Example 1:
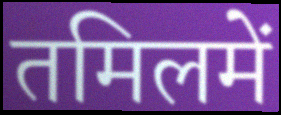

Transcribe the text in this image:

तमिलमें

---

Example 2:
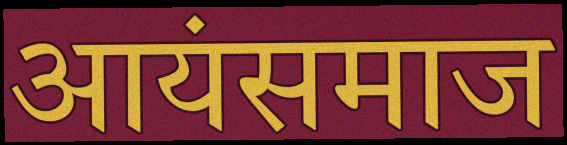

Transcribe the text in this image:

आयंसमाज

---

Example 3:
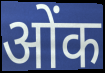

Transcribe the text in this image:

ओंक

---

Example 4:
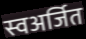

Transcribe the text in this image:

स्वअर्जित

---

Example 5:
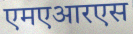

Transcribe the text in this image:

एमएआरएस